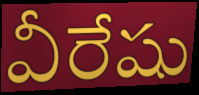
వీరేషు